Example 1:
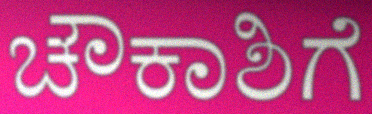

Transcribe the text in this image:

ಚೌಕಾಶಿಗೆ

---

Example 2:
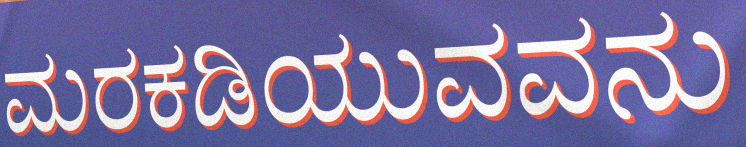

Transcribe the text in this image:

ಮರಕಡಿಯುವವನು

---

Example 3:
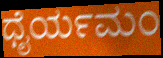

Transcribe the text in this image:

ಧೈರ್ಯಮಂ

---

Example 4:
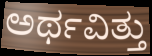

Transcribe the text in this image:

ಅರ್ಥವಿತ್ತು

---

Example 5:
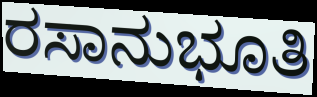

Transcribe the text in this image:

ರಸಾನುಭೂತಿ